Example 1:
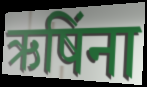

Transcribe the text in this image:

ऋषिंना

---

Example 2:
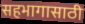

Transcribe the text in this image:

सहभागासाठी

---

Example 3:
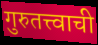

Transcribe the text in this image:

गुरुतत्त्वाची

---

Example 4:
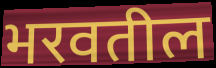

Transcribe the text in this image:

भरवतील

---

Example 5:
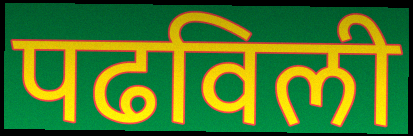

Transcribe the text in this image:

पढविली